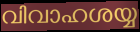
വിവാഹശയ്യ